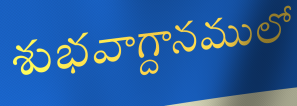
శుభవాగ్దానములో